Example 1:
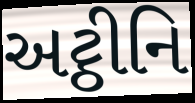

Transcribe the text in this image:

અટ્ઠીનિ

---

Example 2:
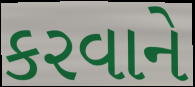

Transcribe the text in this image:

કરવાને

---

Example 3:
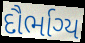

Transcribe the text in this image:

દૌર્ભાગ્ય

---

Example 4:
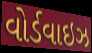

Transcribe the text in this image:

વોર્ડવાઇઝ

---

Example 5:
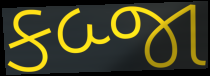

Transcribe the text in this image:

કબ્જા